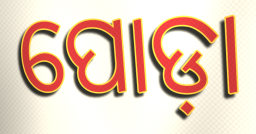
ପୋଡ଼ା